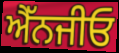
ਐੱਨਜੀਓ